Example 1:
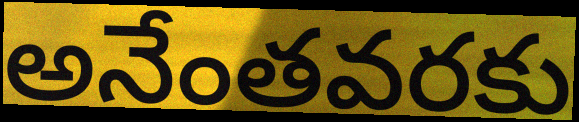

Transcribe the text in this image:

అనేంతవరకు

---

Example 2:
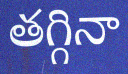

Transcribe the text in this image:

తగ్గినా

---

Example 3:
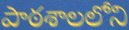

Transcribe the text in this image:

పాఠశాలలోని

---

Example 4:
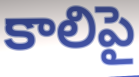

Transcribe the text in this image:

కాలిపై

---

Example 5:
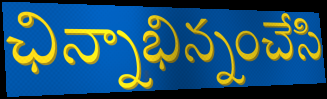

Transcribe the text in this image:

ఛిన్నాభిన్నంచేసి